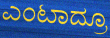
ಎಂಟಾದ್ರೂ